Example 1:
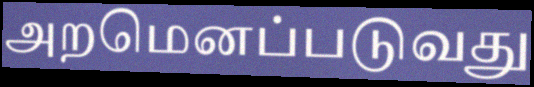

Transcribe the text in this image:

அறமெனப்படுவது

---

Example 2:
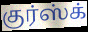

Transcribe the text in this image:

குர்ஸ்க்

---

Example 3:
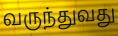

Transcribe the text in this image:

வருந்துவது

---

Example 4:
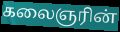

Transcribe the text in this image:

கலைஞரின்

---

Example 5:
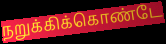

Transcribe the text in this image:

நறுக்கிக்கொண்டே